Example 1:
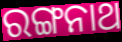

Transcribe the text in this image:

ରଙ୍ଗନାଥ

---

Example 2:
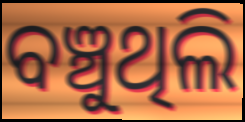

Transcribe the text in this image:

ବଞ୍ଚୁଥିଲି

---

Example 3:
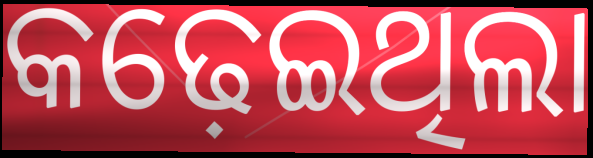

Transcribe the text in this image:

କଢ଼େଇଥିଲା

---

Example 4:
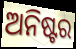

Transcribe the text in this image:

ଅନିଷ୍ଟର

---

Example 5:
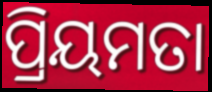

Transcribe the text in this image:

ପ୍ରିୟମତା